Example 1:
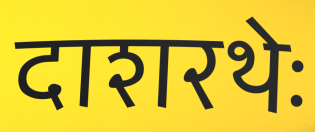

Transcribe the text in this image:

दाशरथेः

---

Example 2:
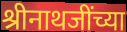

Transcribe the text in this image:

श्रीनाथजींच्या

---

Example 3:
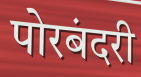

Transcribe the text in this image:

पोरबंदरी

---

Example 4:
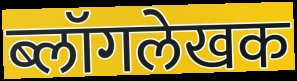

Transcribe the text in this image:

ब्लॉगलेखक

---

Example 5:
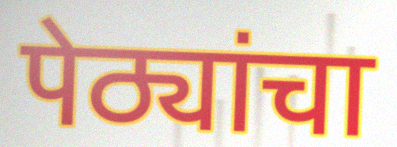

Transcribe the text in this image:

पेठ्यांचा